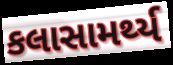
કલાસામર્થ્ય